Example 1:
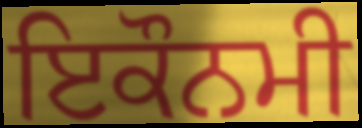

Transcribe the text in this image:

ਇਕੌਨਮੀ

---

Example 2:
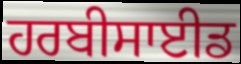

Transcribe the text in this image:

ਹਰਬੀਸਾਈਡ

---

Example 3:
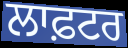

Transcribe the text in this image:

ਲਾਫ਼ਟਰ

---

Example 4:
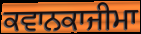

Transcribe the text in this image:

ਕਵਾਨਕਾਜੀਮਾ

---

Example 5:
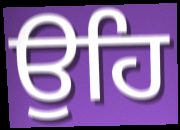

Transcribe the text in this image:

ਉਹਿ